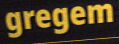
gregem